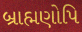
બ્રાહ્મણોપિ